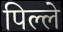
पिल्ले